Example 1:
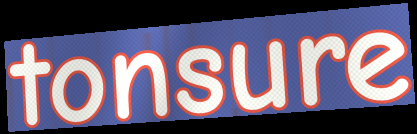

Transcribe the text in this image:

tonsure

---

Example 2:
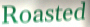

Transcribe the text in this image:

Roasted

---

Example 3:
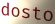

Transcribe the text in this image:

dosto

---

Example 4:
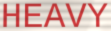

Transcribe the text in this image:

HEAVY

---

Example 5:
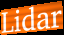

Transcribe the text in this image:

Lidar